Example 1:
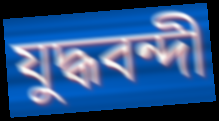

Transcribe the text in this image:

যুদ্ধবন্দী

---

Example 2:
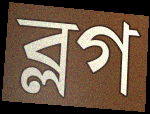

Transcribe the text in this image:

ব্লগ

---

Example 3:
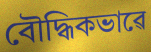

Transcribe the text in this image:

বৌদ্ধিকভাৱে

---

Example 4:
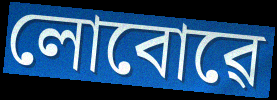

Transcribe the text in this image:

লোবোৱে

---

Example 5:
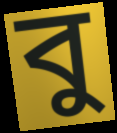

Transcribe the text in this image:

বু